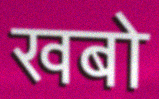
खबो